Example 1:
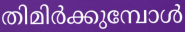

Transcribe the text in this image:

തിമിർക്കുമ്പോൾ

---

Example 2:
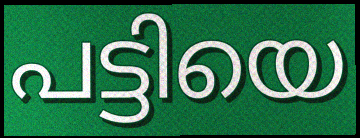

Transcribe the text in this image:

പട്ടിയെ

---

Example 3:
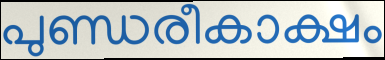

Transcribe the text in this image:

പുണ്ഡരീകാക്ഷം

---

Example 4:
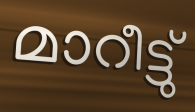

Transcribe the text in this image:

മാറീട്ടു്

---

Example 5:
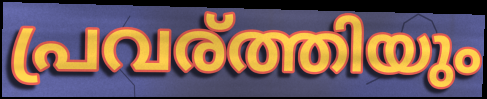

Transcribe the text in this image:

പ്രവര്ത്തിയും